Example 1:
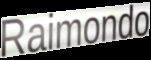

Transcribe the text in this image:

Raimondo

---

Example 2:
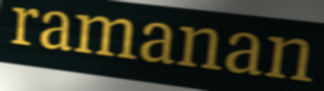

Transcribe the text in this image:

ramanan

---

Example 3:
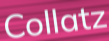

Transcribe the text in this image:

Collatz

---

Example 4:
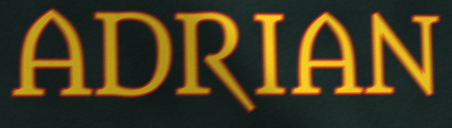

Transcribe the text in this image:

ADRIAN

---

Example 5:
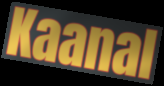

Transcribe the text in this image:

Kaanal